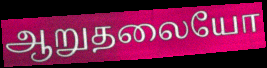
ஆறுதலையோ